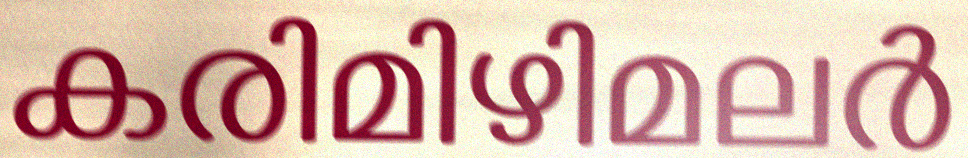
കരിമിഴിമലർ